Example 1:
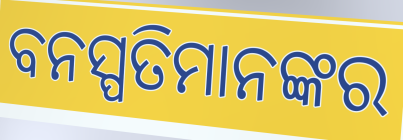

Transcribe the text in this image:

ବନସ୍ପତିମାନଙ୍କର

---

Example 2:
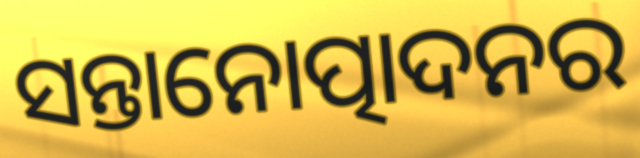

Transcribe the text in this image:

ସନ୍ତାନୋତ୍ପାଦନର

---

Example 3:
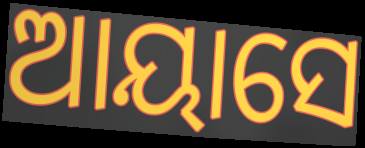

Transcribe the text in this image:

ଆୟାସେ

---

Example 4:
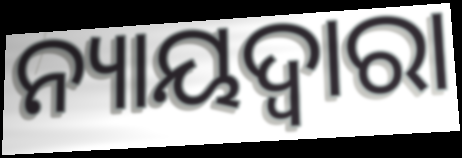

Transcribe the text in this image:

ନ୍ୟାୟଦ୍ୱାରା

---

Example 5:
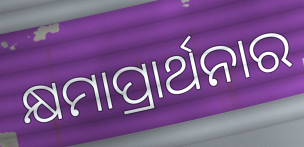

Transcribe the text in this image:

କ୍ଷମାପ୍ରାର୍ଥନାର